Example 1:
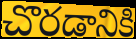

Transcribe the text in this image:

చొరడానికి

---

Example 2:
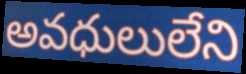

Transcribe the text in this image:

అవధులులేని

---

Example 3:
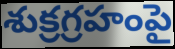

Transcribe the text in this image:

శుక్రగ్రహంపై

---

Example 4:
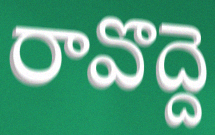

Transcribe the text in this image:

రావొద్దె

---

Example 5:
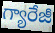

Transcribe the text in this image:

గ్యారేజీ